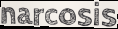
narcosis